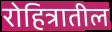
रोहित्रातील